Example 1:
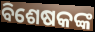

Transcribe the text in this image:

ବିଶେଷକଙ୍କ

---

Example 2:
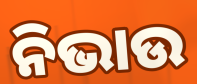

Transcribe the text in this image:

ନିଭାଉ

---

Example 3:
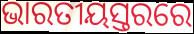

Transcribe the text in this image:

ଭାରତୀୟସ୍ତରରେ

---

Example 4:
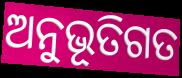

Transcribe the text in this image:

ଅନୁଭୂତିଗତ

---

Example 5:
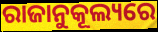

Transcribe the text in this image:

ରାଜାନୁକୂଲ୍ୟରେ